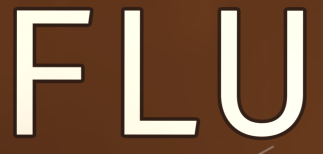
FLU